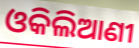
ଓକିଲିଆଣୀ